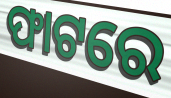
ଫାଟରେ